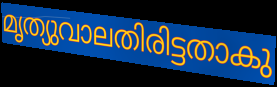
മൃത്യുവാലതിരിട്ടതാകു